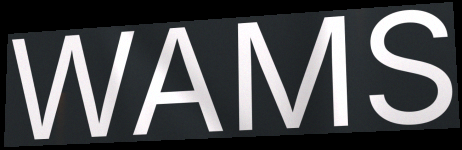
WAMS